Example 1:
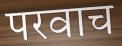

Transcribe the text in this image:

परवाच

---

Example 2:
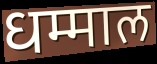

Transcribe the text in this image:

धम्माल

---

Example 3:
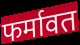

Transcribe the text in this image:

फर्मावत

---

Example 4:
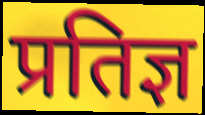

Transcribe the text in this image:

प्रतिज्ञ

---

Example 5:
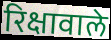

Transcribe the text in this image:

रिक्षावाले